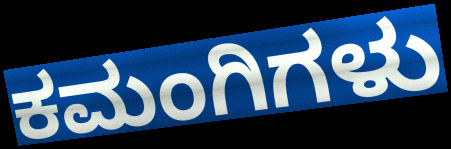
ಕಮಂಗಿಗಳು